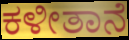
ಕಳೀತಾನೆ